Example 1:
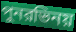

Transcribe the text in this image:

পুনরভিনয়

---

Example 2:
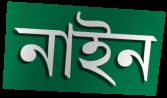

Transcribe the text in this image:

নাইন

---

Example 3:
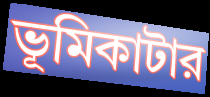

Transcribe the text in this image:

ভূমিকাটার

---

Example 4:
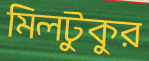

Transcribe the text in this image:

মিলটুকুর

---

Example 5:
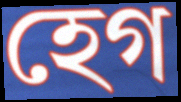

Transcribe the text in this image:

হেগ